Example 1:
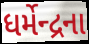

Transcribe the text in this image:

ધર્મેન્દ્રના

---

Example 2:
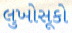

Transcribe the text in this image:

લુખોસૂકો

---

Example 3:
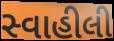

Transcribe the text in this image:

સ્વાહીલી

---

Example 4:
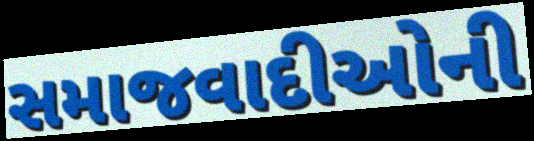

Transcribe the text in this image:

સમાજવાદીઓની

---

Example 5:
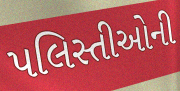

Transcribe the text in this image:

પલિસ્તીઓની